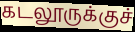
கடலூருக்குச்